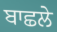
ਬਾਛਲੇ